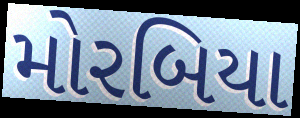
મોરબિયા